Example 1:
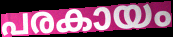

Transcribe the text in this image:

പരകായം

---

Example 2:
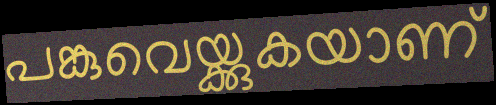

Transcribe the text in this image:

പങ്കുവെയ്ക്കുകയാണ്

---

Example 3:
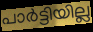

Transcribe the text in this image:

പാർട്ടിയില്ല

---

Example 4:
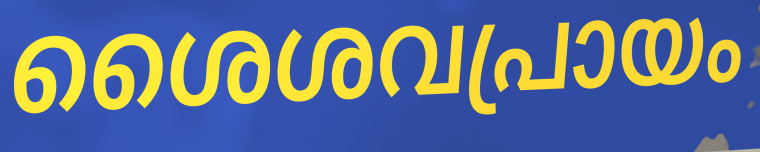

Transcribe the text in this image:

ശൈശവപ്രായം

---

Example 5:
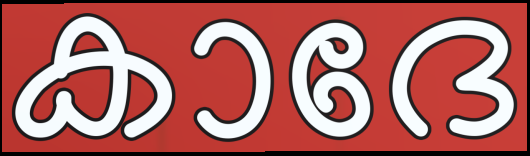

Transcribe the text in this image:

കാദേ